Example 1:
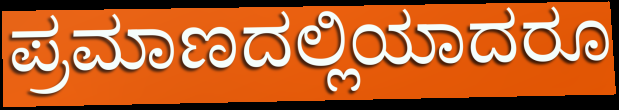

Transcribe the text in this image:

ಪ್ರಮಾಣದಲ್ಲಿಯಾದರೂ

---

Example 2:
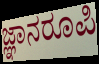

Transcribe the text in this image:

ಜ್ಞಾನರೂಪಿ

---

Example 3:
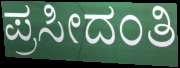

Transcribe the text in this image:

ಪ್ರಸೀದಂತಿ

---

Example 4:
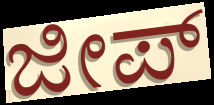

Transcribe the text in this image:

ಜೀಪ್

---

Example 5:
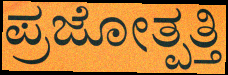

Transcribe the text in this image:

ಪ್ರಜೋತ್ಪತ್ತಿ